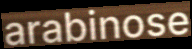
arabinose